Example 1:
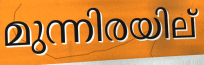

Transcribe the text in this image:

മുന്നിരയില്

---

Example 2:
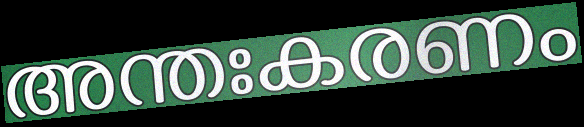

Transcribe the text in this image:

അന്തഃകരണം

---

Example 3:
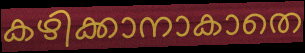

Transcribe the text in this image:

കഴിക്കാനാകാതെ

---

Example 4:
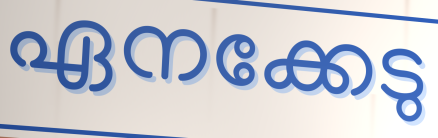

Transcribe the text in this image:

ഏനക്കേടു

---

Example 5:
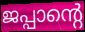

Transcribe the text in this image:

ജപ്പാന്റെ